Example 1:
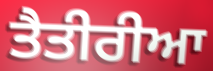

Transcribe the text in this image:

ਤੈਤੀਰੀਆ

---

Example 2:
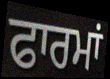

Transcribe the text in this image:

ਫਾਰਮਾਂ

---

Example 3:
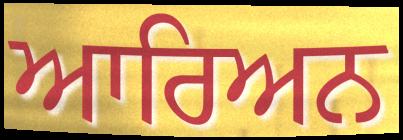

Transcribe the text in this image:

ਆਰਿਅਨ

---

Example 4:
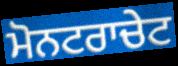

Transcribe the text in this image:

ਮੋਨਟਰਾਚੇਟ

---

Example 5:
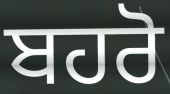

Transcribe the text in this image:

ਬਹਰੋ